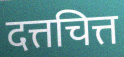
दत्तचित्त